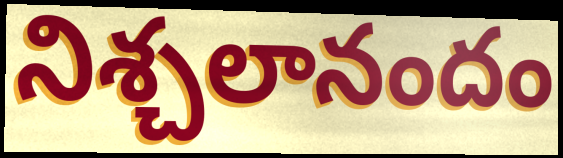
నిశ్చలానందం